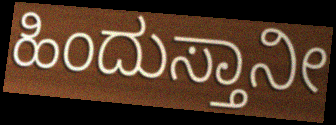
ಹಿಂದುಸ್ತಾನೀ